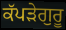
ਕੱਪੜੇਗੁਰੂ